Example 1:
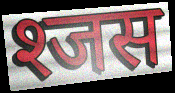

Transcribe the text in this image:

श्जस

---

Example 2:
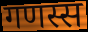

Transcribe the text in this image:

गणस्स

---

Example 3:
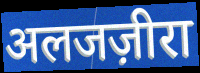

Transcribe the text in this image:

अलजज़ीरा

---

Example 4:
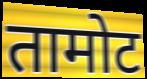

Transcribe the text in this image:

तामोट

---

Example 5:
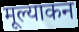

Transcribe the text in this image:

मूल्याकन